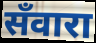
सँवारा